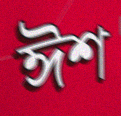
ঈশ